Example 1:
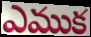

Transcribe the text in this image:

ఎముక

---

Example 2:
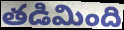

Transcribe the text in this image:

తడిమింది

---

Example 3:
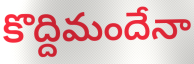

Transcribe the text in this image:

కొద్దిమందేనా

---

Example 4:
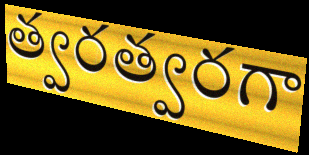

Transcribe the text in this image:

త్వరత్వరగా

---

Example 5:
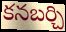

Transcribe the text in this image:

కనబర్చి